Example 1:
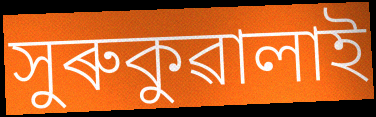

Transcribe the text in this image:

সুৰুকুৱালাই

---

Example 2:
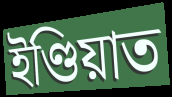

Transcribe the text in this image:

ইণ্ডিয়াত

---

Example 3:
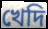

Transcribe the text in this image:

খেদি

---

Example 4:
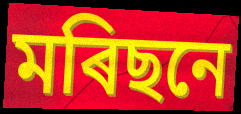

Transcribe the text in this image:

মৰিছনে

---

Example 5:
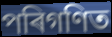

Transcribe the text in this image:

পৰিগণিত